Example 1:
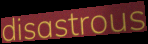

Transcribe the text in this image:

disastrous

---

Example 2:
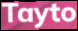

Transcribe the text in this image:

Tayto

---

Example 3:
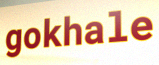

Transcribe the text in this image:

gokhale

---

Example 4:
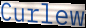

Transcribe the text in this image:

Curlew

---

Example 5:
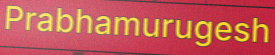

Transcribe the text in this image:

Prabhamurugesh